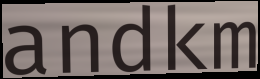
andkm